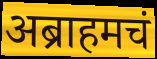
अब्राहमचं